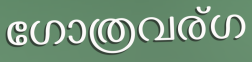
ഗോത്രവര്ഗ